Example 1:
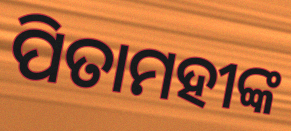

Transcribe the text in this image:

ପିତାମହୀଙ୍କ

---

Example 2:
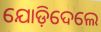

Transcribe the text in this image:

ଯୋଡ଼ିଦେଲେ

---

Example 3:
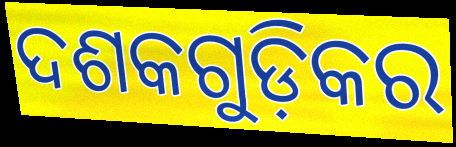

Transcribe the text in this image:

ଦଶକଗୁଡ଼ିକର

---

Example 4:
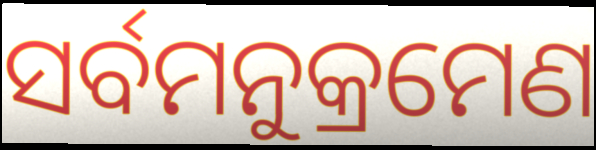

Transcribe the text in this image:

ସର୍ବମନୁକ୍ରମେଣ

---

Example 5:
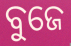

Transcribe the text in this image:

ବୁଜେ